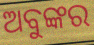
ଅବୁଙ୍କର